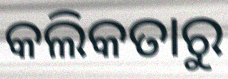
କଲିକତାରୁ